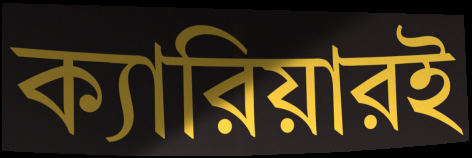
ক্যারিয়ারই